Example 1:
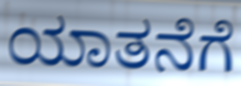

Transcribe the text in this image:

ಯಾತನೆಗೆ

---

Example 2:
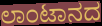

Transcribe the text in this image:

ಲಾಂಟಾನದ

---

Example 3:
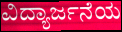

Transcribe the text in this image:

ವಿದ್ಯಾರ್ಜನೆಯ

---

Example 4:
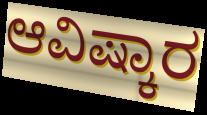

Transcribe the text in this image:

ಆವಿಷ್ಕಾರ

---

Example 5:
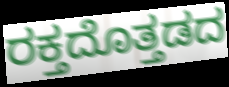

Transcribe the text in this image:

ರಕ್ತದೊತ್ತಡದ